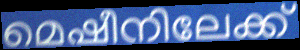
മെഷീനിലേക്ക്